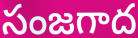
సంజగాద